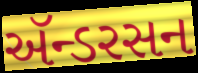
ઍન્ડરસન